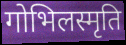
गोभिलस्मृति